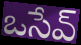
ఒసేవ్